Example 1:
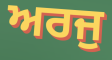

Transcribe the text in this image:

ਅਰਜੁ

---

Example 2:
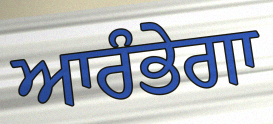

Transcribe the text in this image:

ਆਰੰਭੇਗਾ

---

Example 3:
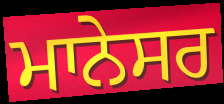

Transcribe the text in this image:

ਮਾਨੇਸਰ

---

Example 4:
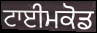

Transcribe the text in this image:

ਟਾਈਮਕੋਡ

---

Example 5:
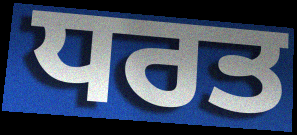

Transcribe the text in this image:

ਧਰਤ